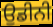
ਉਡੀਨੀ